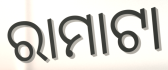
ରାମାଟା